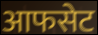
आफसेट